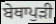
ਬੇਥਾਪੁੜੀ